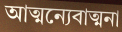
আত্মন্যেবাত্মনা